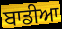
ਬਾਡੀਆ